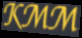
KMM